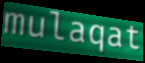
mulaqat